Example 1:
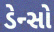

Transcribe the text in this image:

ડેન્સો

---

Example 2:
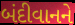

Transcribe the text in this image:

બંદીવાનને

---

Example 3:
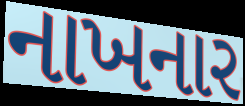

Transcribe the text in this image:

નાખનાર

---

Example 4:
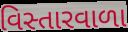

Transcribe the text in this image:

વિસ્તારવાળા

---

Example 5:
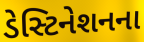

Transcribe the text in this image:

ડેસ્ટિનેશનના